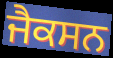
ਜੈਕਸਨ